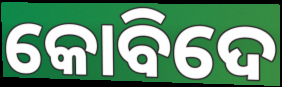
କୋବିଦେ